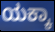
ಯಕ್ಕಾ